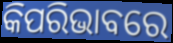
କିପରିଭାବରେ